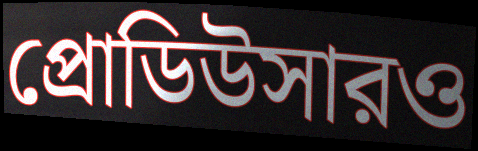
প্রোডিউসারও